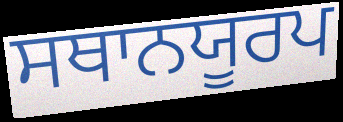
ਸਥਾਨਯੂਰਪ